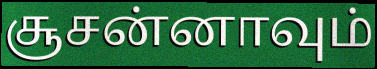
சூசன்னாவும்